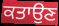
ਕਤਾਉਣ